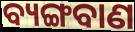
ବ୍ୟଙ୍ଗବାଣ